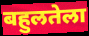
बहुलतेला